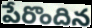
పేరొందిన